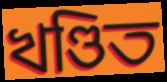
খণ্ডিত